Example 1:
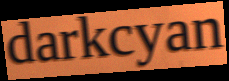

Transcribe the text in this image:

darkcyan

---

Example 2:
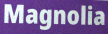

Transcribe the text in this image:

Magnolia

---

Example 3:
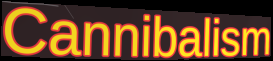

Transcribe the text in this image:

Cannibalism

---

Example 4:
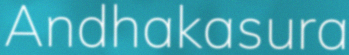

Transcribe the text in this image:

Andhakasura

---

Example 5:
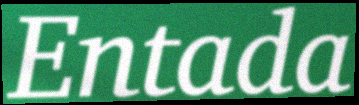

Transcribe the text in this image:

Entada